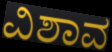
ವಿಶಾವ